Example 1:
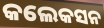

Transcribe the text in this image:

କଲେକସନ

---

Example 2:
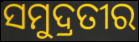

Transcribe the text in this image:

ସମୁଦ୍ରତୀର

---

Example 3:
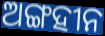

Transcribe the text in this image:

ଅଙ୍ଗହୀନ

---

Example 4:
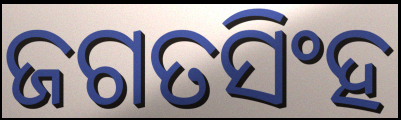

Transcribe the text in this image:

ଜଗତସିଂହ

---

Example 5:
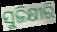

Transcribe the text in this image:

ସୁଜିକ୍ଷୀରି